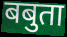
बबुता